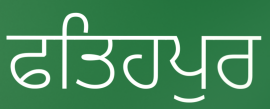
ਫਤਿਹਪੁਰ